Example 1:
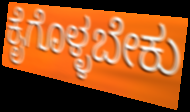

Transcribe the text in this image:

ಕೈಗೊಳ್ಳಬೇಕು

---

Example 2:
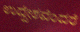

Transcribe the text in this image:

ಉದ್ದೇಶವೆಂದರೆ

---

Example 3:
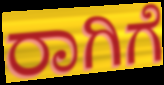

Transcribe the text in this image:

ರಾಗಿಗೆ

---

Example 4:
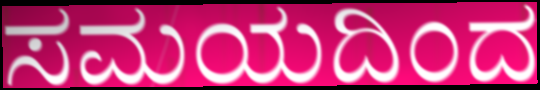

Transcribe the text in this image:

ಸಮಯದಿಂದ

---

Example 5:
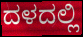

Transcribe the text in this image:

ದಳದಲ್ಲಿ